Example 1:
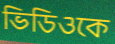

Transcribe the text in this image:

ভিডিওকে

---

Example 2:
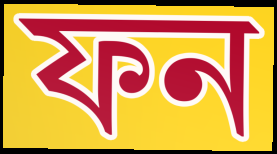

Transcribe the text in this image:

ফন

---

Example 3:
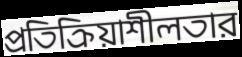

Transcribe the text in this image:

প্রতিক্রিয়াশীলতার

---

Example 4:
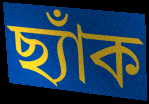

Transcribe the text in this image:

ছ্যাঁক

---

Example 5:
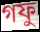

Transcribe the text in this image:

গফু